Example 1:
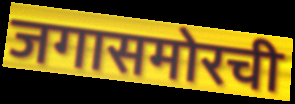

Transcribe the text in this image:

जगासमोरची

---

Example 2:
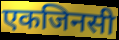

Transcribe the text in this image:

एकजिनसी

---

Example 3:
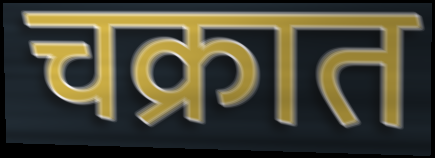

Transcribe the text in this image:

चक्रात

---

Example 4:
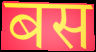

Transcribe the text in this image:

बस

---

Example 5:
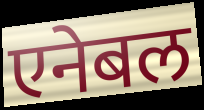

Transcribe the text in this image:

एनेबल